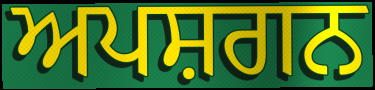
ਅਪਸ਼ਗਨ